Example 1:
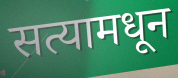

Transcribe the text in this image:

सत्यामधून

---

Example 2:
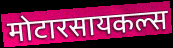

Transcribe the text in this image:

मोटारसायकल्स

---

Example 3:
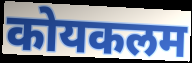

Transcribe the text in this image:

कोयकलम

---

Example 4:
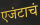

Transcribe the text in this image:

एजंटाचं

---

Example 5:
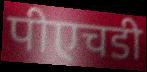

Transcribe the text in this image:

पीएचडी